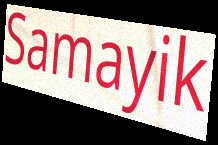
Samayik